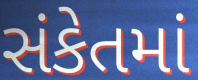
સંકેતમાં